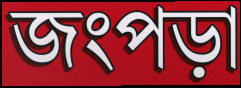
জংপড়া